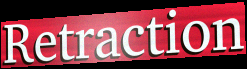
Retraction